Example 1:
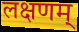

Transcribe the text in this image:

लक्षणम्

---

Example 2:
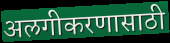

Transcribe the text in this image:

अलगीकरणासाठी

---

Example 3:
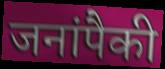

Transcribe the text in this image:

जनांपैकी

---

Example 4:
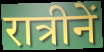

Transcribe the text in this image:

रात्रीनें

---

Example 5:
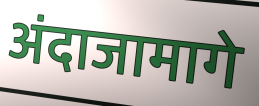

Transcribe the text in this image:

अंदाजामागे